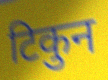
टिकुन